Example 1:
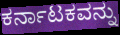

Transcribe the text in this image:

ಕರ್ನಾಟಕವನ್ನು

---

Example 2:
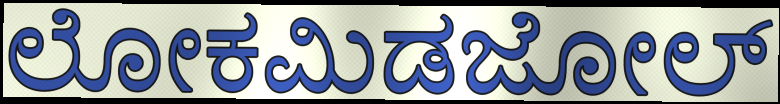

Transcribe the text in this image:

ಲೋಕಮಿಡಜೋಲ್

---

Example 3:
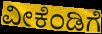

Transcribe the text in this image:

ವೀಕೆಂಡಿಗೆ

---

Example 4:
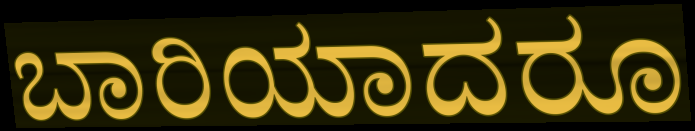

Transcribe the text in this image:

ಬಾರಿಯಾದರೂ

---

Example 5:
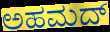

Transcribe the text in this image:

ಅಹಮದ್